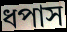
ধপাস